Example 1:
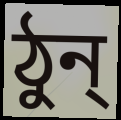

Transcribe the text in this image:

ঠুন্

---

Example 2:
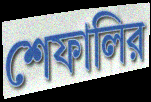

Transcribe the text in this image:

শেফালির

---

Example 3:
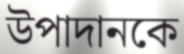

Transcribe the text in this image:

উপাদানকে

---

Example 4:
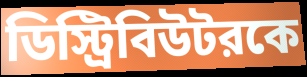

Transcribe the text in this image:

ডিস্ট্রিবিউটরকে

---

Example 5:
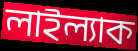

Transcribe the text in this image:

লাইল্যাক